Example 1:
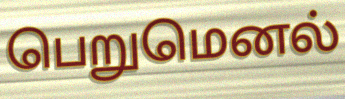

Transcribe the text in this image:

பெறுமெனல்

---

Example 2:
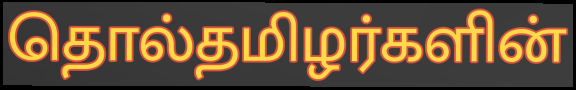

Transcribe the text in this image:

தொல்தமிழர்களின்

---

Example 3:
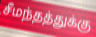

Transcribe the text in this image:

சீமந்தத்துக்கு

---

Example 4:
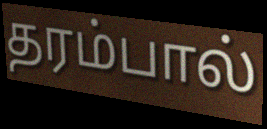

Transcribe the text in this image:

தரம்பால்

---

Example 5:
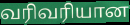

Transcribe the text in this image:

வரிவரியான